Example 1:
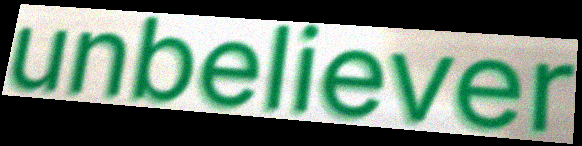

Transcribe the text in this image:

unbeliever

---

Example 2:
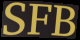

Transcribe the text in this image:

SFB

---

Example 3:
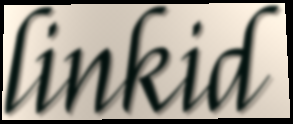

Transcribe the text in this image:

linkid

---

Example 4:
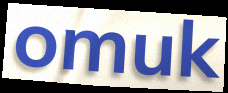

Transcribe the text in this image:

omuk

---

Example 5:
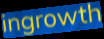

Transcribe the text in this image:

ingrowth